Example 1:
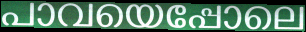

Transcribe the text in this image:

പാവയെപ്പോലെ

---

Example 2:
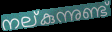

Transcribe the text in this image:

നല്കുന്നുണ്ട്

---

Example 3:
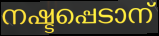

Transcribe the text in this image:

നഷ്ടപ്പെടാന്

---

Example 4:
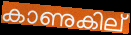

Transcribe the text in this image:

കാണുകില്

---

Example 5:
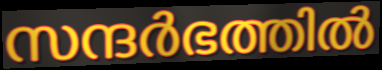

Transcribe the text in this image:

സന്ദർഭത്തിൽ